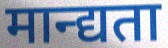
मान्द्यता